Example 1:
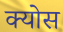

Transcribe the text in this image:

क्योस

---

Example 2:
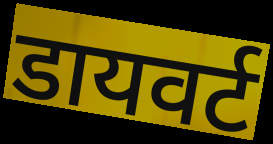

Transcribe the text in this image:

डायवर्ट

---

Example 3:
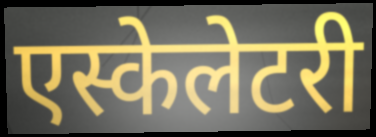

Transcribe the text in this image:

एस्केलेटरी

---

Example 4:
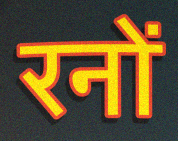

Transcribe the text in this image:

रनों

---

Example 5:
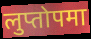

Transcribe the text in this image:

लुप्तोपमा